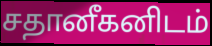
சதானீகனிடம்